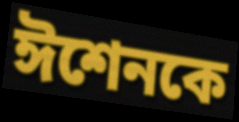
ঈশেনকে